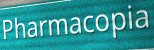
Pharmacopia